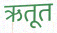
ऋतूत